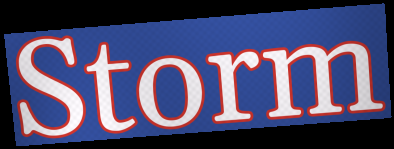
Storm